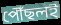
পৌঁছলই